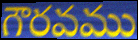
గౌరవము